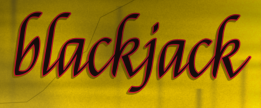
blackjack